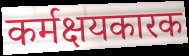
कर्मक्षयकारक